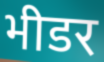
भीडर